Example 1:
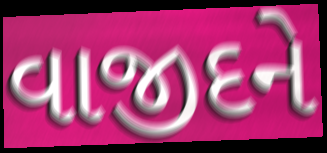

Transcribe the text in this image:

વાજીદને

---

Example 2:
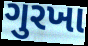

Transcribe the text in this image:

ગુરખા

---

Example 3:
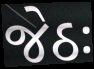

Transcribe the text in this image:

જેઠઃ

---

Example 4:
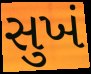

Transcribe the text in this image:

સુખં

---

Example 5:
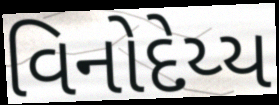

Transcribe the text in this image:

વિનોદેય્ય